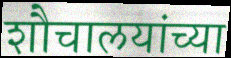
शौचालयांच्या